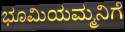
ಭೂಮಿಯಮ್ಮನಿಗೆ